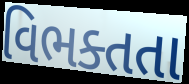
વિભક્તતા